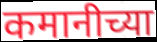
कमानीच्या